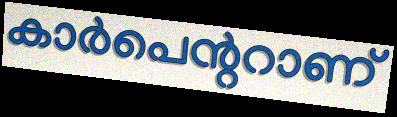
കാർപെന്ററാണ്